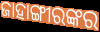
ଜାହାଙ୍ଗୀରଙ୍କର